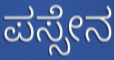
ಪಸ್ಸೇನ